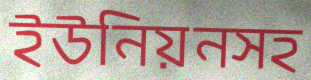
ইউনিয়নসহ